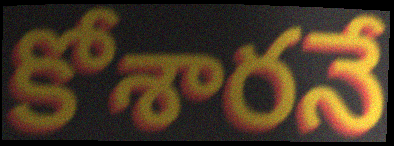
కోశారనే